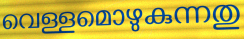
വെള്ളമൊഴുകുന്നതു